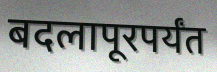
बदलापूरपर्यंत